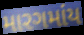
મારગમાંય